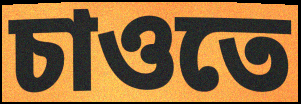
চাওতে